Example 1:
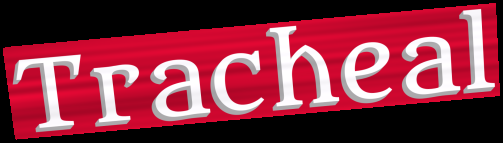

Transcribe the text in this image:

Tracheal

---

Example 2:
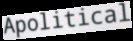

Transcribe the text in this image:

Apolitical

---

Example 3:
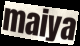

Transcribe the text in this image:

maiya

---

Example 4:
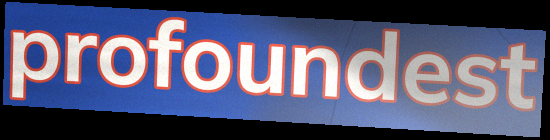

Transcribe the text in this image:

profoundest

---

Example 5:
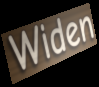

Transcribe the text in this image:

Widen